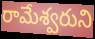
రామేశ్వరుని